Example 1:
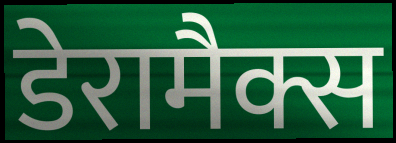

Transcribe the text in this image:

डेरामैक्स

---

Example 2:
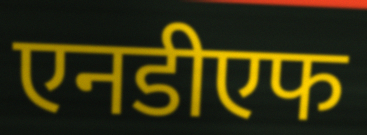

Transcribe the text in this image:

एनडीएफ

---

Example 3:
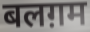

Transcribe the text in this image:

बलग़म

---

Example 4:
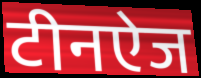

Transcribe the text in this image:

टीनऐज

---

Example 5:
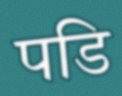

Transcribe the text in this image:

पडि